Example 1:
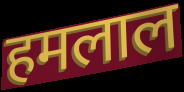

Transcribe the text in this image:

हमलाल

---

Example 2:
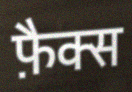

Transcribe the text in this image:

फ़ैक्स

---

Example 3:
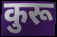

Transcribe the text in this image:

कुरू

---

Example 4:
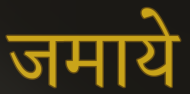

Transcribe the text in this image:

जमाये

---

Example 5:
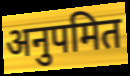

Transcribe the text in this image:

अनुपमित